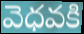
వెధవకి